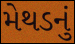
મેથડનું